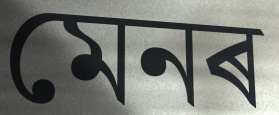
মেনৰ